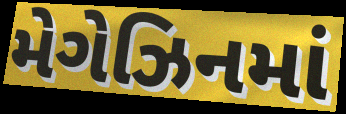
મેગેઝિનમાં